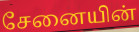
சேனையின்